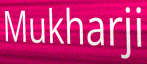
Mukharji